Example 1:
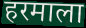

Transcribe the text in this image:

हरमाला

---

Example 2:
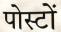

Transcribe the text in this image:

पोस्टों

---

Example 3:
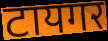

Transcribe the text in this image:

टायगर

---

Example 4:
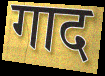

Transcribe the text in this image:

गाद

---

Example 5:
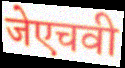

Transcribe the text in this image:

जेएचवी